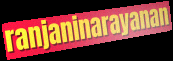
ranjaninarayanan